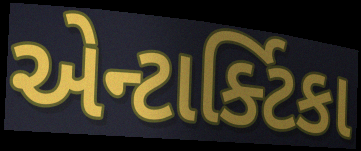
એન્ટાર્ક્ટિકા